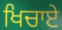
ਖਿਚਾਏ